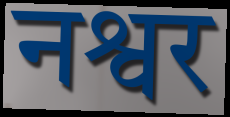
नश्वर